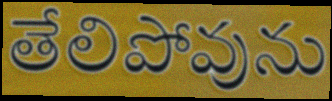
తేలిపోవును